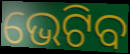
ଭେଟିବ